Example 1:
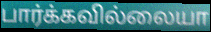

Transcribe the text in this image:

பார்க்கவில்லையா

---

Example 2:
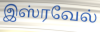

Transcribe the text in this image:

இஸ்ரவேல்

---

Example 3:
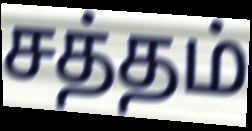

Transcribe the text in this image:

சத்தம்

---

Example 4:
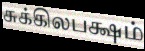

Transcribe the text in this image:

சுக்கிலபக்ஷம்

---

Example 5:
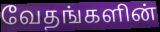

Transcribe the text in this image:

வேதங்களின்